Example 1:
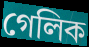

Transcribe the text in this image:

গেলিক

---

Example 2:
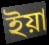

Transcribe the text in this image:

ইয়া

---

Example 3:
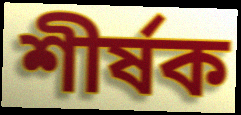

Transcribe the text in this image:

শীৰ্ষক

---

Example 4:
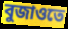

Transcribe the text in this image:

বুজাওতে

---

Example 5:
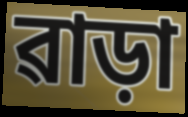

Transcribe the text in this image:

ৱাড়া